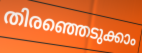
തിരഞ്ഞെടുക്കാം